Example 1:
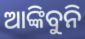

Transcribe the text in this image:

ଆଙ୍କିବୁନି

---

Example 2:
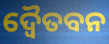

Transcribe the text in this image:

ଦ୍ବୈତବନ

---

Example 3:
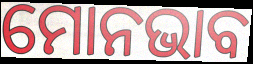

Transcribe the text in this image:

ମୋନଭାବ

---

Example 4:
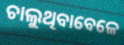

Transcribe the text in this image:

ଚାଲୁଥିବାବେଳେ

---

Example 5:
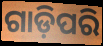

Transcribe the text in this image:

ଗାଡ଼ିପରି